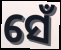
ସେଁ